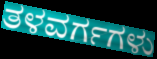
ತಳವರ್ಗಗಳು